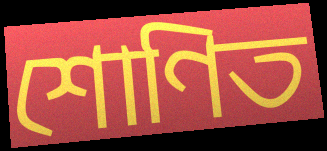
শোণিত